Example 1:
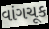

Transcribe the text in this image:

વાંગચૂક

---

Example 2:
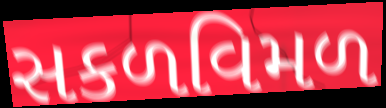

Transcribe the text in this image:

સકળવિમળ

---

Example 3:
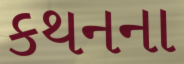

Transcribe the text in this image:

કથનના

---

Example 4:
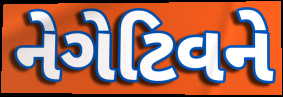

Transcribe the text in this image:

નેગેટિવને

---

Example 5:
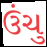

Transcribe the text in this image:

ઉંચુ